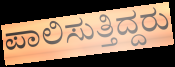
ಪಾಲಿಸುತ್ತಿದ್ದರು